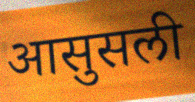
आसुसली